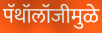
पॅथॉलॉजीमुळे